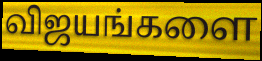
விஜயங்களை